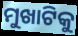
ମୁଖାଟିକୁ